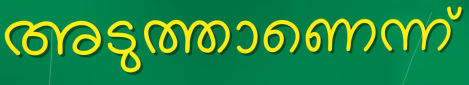
അടുത്താണെന്ന്